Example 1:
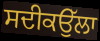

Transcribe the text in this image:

ਸਦੀਕਉੱਲਾ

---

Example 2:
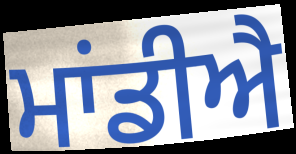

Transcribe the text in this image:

ਮਾਂਡੀਐ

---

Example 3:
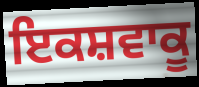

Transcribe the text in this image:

ਇਕਸ਼ਵਾਕੂ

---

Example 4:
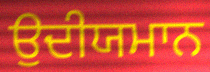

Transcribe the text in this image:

ਉਦੀਯਮਾਨ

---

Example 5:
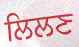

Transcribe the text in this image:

ਲਿਲਣ